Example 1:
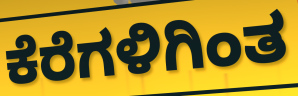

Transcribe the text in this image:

ಕೆರೆಗಳಿಗಿಂತ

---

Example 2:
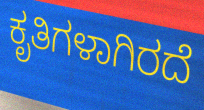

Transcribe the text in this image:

ಕೃತಿಗಳಾಗಿರದೆ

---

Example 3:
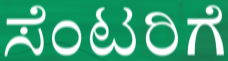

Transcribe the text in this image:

ಸೆಂಟರಿಗೆ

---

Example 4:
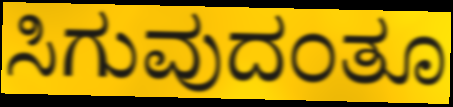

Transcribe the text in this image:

ಸಿಗುವುದಂತೂ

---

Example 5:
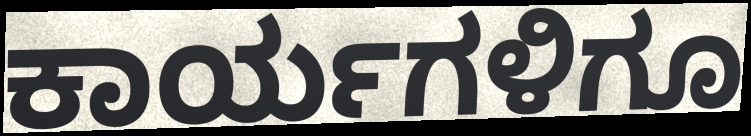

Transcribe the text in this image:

ಕಾರ್ಯಗಳಿಗೂ